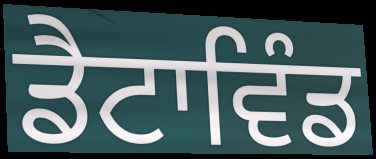
ਡੈਟਾਵਿੰਡ